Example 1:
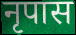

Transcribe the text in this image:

नृपास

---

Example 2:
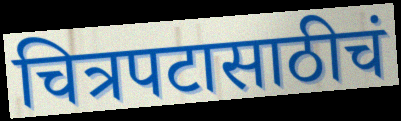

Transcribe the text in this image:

चित्रपटासाठीचं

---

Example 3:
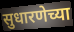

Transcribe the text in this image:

सुधारणेच्या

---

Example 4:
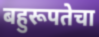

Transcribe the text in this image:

बहुरूपतेचा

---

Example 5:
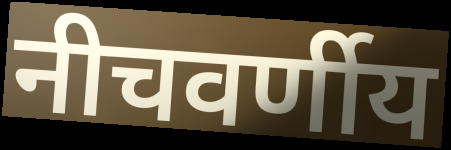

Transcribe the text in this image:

नीचवर्णीय